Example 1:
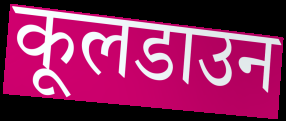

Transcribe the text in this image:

कूलडाउन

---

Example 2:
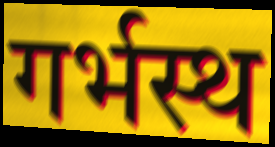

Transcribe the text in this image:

गर्भस्थ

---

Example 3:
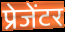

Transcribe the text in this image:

प्रेजेंटर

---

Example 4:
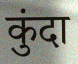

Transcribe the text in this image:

कुंदा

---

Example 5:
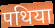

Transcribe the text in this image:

पथिया